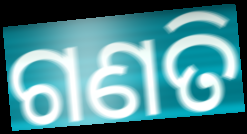
ଗଣତି